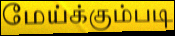
மேய்க்கும்படி